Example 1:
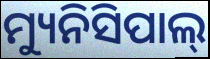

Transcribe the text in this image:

ମ୍ୟୁନିସିପାଲ୍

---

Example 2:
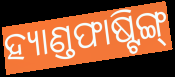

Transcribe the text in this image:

ହ୍ୟାଣ୍ଡଫାଷ୍ଟିଙ୍ଗ୍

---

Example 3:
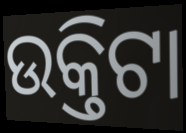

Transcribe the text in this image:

ଉକ୍ତିଟା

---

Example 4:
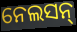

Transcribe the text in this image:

ନେଲସନ୍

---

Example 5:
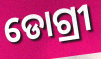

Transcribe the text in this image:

ଡୋଗ୍ରୀ